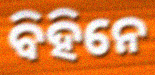
ବିହିନେ